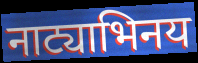
नाट्याभिनय